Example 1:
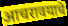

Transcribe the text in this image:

आचरावयाचे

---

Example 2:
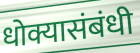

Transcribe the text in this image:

धोक्यासंबंधी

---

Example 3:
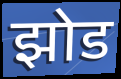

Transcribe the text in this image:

झोड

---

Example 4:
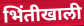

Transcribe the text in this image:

भिंतीखाली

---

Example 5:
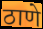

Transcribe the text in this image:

ठाणे